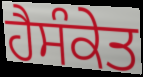
ਹੈਸੰਕੇਤ